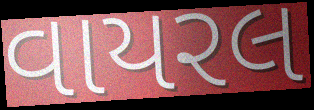
વાયરલ